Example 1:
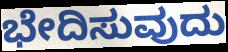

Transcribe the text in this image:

ಭೇದಿಸುವುದು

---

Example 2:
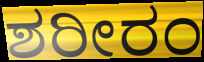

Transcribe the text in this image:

ಶರೀರಂ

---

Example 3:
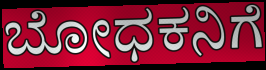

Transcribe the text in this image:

ಬೋಧಕನಿಗೆ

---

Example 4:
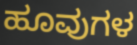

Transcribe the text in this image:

ಹೂವುಗಳ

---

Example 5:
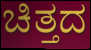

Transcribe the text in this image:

ಚಿತ್ತದ